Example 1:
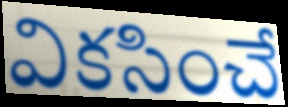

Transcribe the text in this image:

వికసించే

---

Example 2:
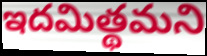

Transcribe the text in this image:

ఇదమిత్థమని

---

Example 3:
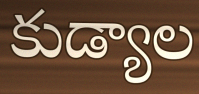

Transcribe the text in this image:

కుడ్యాల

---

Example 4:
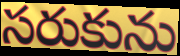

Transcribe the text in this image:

సరుకును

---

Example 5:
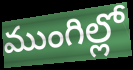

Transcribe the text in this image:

ముంగిల్లో